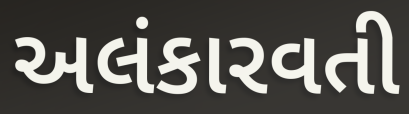
અલંકારવતી